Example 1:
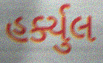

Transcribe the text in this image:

હર્ક્યુલ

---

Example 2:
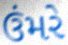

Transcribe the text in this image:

ઉંમરે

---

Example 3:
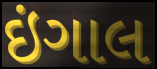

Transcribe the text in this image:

ઇંગાલ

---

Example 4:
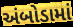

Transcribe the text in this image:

અંબોડામાં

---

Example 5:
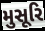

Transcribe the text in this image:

મુસૂરિ